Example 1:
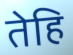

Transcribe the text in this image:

तेहि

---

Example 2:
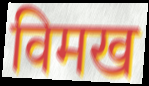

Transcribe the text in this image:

विमख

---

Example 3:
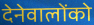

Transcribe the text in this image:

देनेवालोंको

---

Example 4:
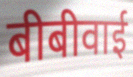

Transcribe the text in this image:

बीबीवाई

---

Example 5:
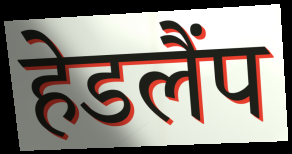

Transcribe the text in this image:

हेडलैंप